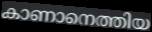
കാണാനെത്തിയ